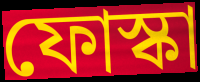
ফোস্কা